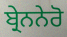
ਬ੍ਰੇਨਨੇਰੋ